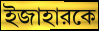
ইজাহারকে